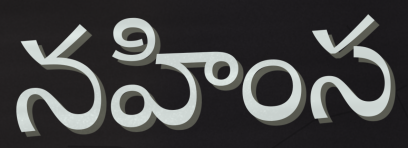
నహింస